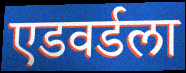
एडवर्डला